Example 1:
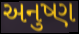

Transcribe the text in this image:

અનુષ્ણ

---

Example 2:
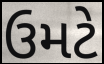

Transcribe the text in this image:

ઉમટે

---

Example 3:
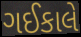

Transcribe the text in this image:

ગઈકાલે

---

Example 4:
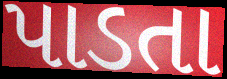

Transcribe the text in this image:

પાડતા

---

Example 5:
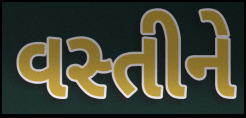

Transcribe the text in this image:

વસ્તીને